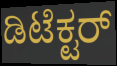
ಡಿಟೆಕ್ಟರ್